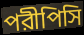
পরীপিসি